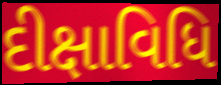
દીક્ષાવિધિ